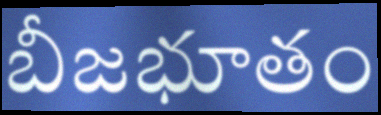
బీజభూతం